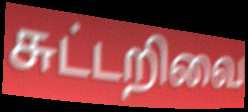
சுட்டறிவை